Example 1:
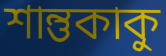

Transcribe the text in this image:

শান্তুকাকু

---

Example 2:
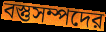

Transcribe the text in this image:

বস্তুসম্পদের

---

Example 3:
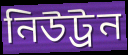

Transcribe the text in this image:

নিউট্রন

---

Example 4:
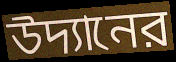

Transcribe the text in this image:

উদ্যানের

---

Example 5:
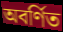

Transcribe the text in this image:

অবর্ণিত